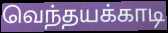
வெந்தயக்காடி